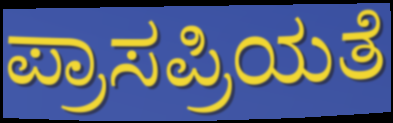
ಪ್ರಾಸಪ್ರಿಯತೆ